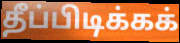
தீப்பிடிக்கக்